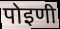
पोइणी